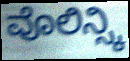
ವೊಲಿನ್ಸ್ಕಿ